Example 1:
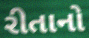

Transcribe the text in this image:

રીતાનો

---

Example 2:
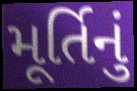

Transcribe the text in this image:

મૂર્તિનું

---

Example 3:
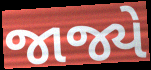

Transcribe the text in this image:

જાજ્યે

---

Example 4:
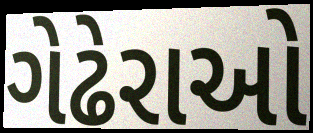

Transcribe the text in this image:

ગેઢેરાઓ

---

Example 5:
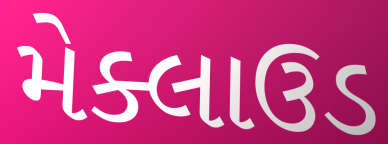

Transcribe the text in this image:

મેક્લાઉડ